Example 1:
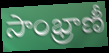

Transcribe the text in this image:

సాంభ్రాణీ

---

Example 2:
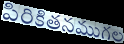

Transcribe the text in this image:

పిరికితనముగల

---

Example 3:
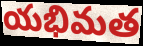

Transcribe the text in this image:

యభిమత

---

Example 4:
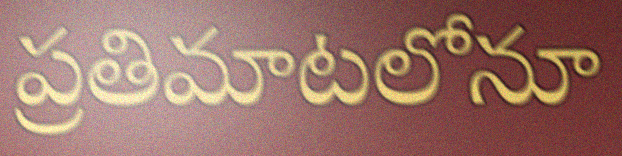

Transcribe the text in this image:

ప్రతిమాటలోనూ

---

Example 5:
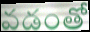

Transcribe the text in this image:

వడంతో